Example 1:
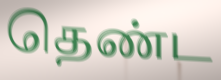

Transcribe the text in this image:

தெண்ட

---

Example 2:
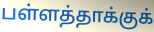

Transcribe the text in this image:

பள்ளத்தாக்குக்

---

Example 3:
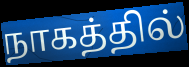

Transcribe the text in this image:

நாகத்தில்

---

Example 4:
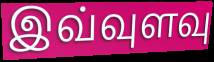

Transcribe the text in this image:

இவ்வுளவு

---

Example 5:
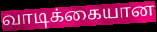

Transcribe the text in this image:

வாடிக்கையான